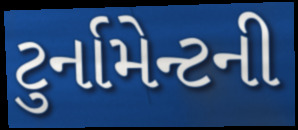
ટુર્નામેન્ટની